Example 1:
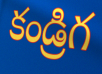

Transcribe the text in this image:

కండ్రిగ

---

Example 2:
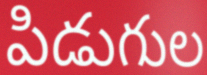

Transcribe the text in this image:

పిడుగుల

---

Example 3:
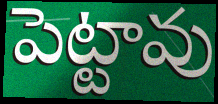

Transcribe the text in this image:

పెట్టావు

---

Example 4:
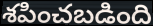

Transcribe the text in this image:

శపించబడింది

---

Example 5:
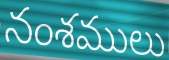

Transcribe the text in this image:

నంశములు